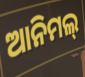
ଆନିମଲ୍